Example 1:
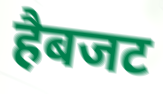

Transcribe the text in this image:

हैबजट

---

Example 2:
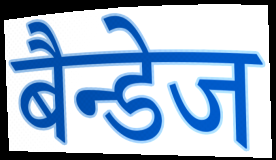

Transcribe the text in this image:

बैन्डेज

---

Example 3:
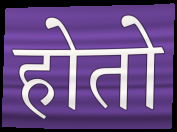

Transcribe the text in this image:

होतो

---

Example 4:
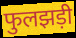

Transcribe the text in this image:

फुलझड़ी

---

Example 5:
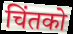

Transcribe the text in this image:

चिंतको